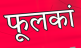
फूलकां